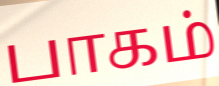
பாகம்